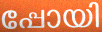
പ്പോയി